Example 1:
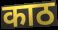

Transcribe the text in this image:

काठ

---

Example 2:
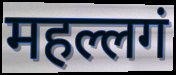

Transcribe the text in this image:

महल्लगं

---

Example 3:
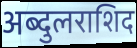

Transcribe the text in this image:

अब्दुलराशिद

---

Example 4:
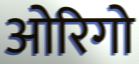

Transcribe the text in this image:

ओरिगो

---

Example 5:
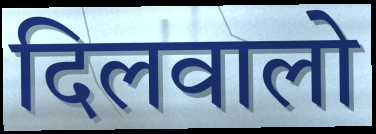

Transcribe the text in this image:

दिलवालो